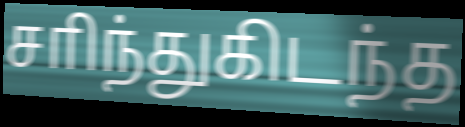
சரிந்துகிடந்த